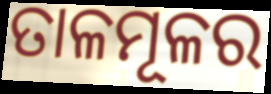
ତାଳମୂଳର